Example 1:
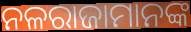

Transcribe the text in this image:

ନଳରାଜାମାନଙ୍କ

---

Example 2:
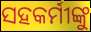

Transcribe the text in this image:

ସହକର୍ମୀଙ୍କୁ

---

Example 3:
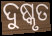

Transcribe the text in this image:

ଦୁଷ୍କୃତ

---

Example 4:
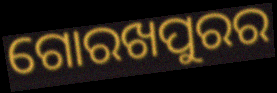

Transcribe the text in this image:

ଗୋରଖପୁରର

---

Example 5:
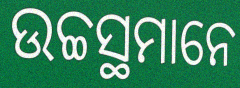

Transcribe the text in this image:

ଉଚ୍ଚସ୍ଥମାନେ